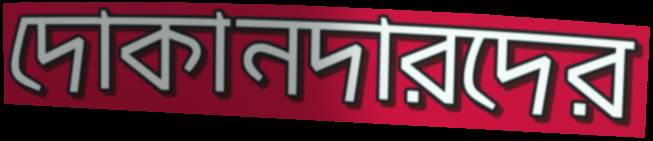
দোকানদারদের